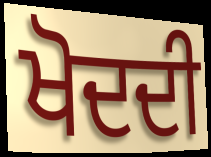
ਖੋਦਦੀ